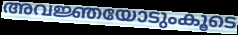
അവജ്ഞയോടുംകൂടെ